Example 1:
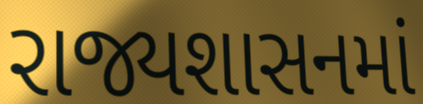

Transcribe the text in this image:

રાજ્યશાસનમાં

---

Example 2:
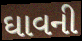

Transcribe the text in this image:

ઘાવની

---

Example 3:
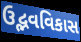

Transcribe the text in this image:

ઉદ્ભવવિકાસ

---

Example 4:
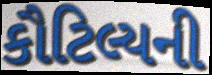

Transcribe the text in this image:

કૌટિલ્યની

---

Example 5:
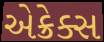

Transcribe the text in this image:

એક્રેક્સ